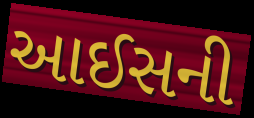
આઈસની